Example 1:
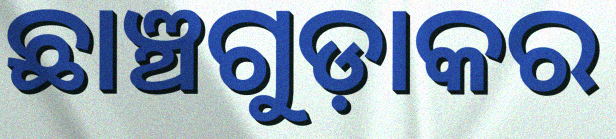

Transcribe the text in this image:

ଛାଞ୍ଚଗୁଡ଼ାକର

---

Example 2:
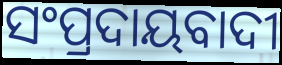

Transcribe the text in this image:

ସଂପ୍ରଦାୟବାଦୀ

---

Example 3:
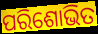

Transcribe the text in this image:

ପରିଶୋଭିତ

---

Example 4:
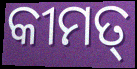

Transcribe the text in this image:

କୀମତ୍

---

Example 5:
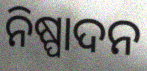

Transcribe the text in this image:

ନିଷ୍ପାଦନ